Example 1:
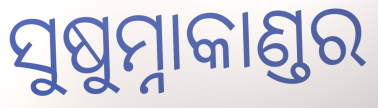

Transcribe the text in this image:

ସୁଷୁମ୍ନାକାଣ୍ଡର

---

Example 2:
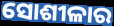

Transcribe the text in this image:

ସୋଶୀଳାର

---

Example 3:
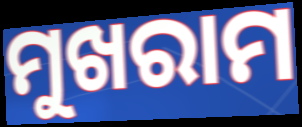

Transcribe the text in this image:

ମୁଖରାମ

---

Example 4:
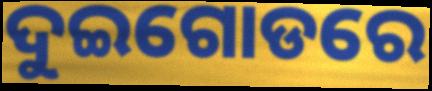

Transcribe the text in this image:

ଦୁଇଗୋଡରେ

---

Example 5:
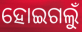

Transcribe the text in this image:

ହୋଇଗଲୁଁ